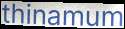
thinamum